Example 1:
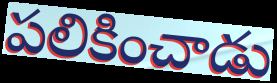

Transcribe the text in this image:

పలికించాడు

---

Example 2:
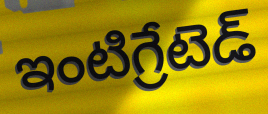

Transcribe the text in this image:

ఇంటిగ్రేటెడ్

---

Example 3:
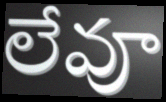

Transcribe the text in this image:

లేవూ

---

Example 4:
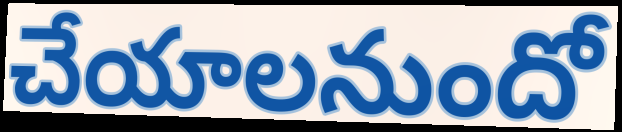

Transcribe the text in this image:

చేయాలనుందో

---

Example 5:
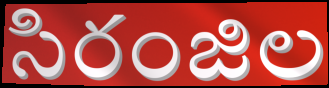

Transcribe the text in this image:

సిరంజిల